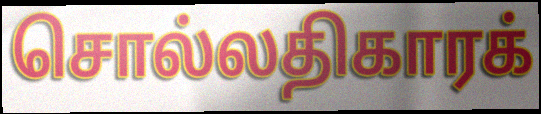
சொல்லதிகாரக்